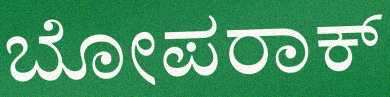
ಬೋಪರಾಕ್